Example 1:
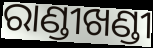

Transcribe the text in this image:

ରାଣ୍ଡୀଖଣ୍ଡୀ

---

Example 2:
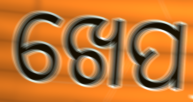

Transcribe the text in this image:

ଖେପ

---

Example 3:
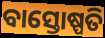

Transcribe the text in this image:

ବାସ୍ତୋଷ୍ପତି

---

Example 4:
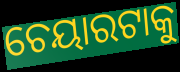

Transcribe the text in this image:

ଚେୟାରଟାକୁ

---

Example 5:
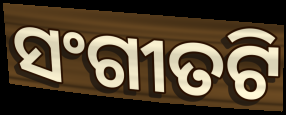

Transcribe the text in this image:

ସଂଗୀତଟି